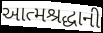
આત્મશ્રદ્ધાની